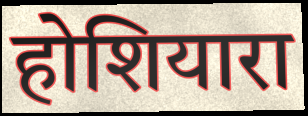
होशियारा